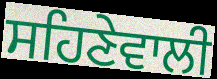
ਸਹਿਣੇਵਾਲੀ